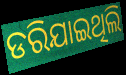
ଡରିଯାଇଥିଲି